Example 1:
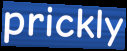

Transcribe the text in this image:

prickly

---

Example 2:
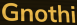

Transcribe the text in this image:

Gnothi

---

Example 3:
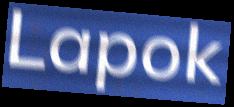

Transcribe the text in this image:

Lapok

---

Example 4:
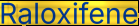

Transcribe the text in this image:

Raloxifene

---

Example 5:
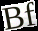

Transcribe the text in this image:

Bf